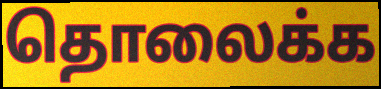
தொலைக்க